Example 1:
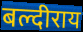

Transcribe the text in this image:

बल्दीराय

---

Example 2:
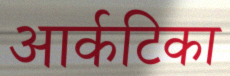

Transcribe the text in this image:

आर्कटिका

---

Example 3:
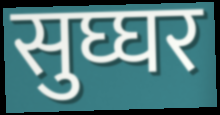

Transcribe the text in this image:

सुघ्घर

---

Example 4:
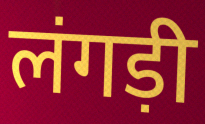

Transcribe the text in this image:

लंगड़ी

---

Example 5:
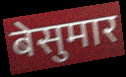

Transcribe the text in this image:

बेसुमार